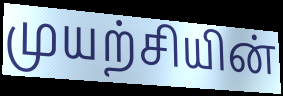
முயற்சியின்